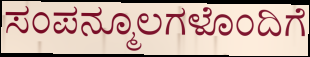
ಸಂಪನ್ಮೂಲಗಳೊಂದಿಗೆ